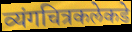
व्यंगचित्रकलेकडे